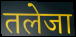
तलेजा